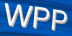
WPP